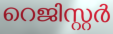
റെജിസ്റ്റർ